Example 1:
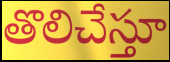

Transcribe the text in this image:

తొలిచేస్తూ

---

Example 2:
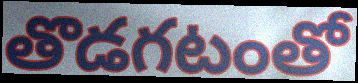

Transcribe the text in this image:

తొడగటంతో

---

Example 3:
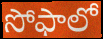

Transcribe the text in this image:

సోఫాలో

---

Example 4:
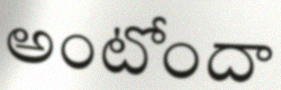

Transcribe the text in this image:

అంటోందా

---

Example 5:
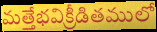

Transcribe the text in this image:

మత్తేభవిక్రీడితములో